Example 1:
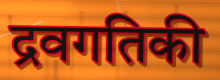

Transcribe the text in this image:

द्रवगतिकी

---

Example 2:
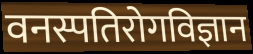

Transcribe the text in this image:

वनस्पतिरोगविज्ञान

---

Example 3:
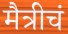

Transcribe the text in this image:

मैत्रीचं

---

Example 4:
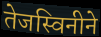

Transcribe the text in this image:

तेजस्विनीने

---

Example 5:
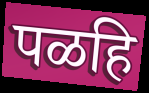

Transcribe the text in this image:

पळहि